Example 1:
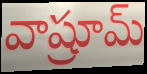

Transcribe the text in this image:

వాష్రూమ్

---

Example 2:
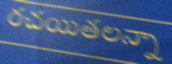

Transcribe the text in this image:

రచయితలన్నా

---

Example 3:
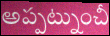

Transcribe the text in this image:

అప్పట్నుంచీ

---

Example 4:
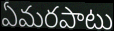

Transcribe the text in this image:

ఏమరపాటు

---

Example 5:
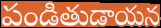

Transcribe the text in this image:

పండితుడాయన